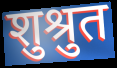
शुश्रुत